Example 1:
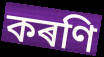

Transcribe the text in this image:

কৰণি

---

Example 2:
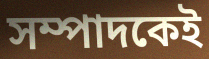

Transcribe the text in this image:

সম্পাদকেই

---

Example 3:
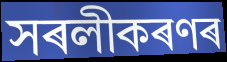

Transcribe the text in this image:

সৰলীকৰণৰ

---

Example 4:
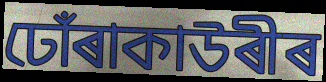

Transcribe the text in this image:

ঢোঁৰাকাউৰীৰ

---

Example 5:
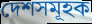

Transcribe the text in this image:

দেশসমূহক